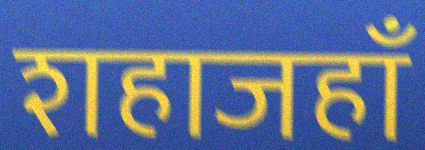
शहाजहाँ